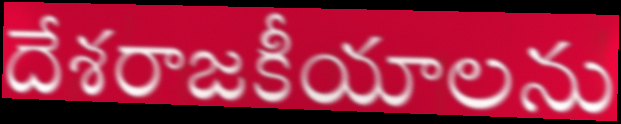
దేశరాజకీయాలను